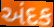
અંદક